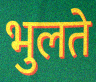
भुलते